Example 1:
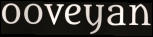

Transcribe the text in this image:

ooveyan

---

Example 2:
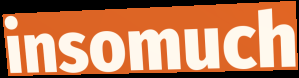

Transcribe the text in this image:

insomuch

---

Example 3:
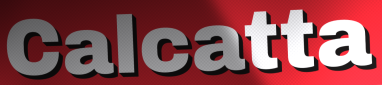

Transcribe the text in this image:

Calcatta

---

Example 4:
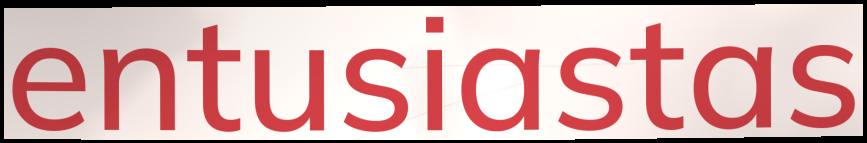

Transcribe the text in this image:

entusiastas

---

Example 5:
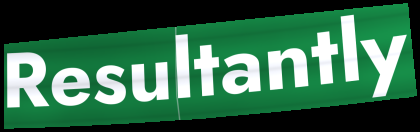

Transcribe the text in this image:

Resultantly